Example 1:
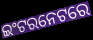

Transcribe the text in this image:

ଇଂଟରନେଟରେ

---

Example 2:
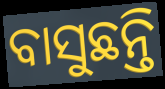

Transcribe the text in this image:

ବାସୁଛନ୍ତି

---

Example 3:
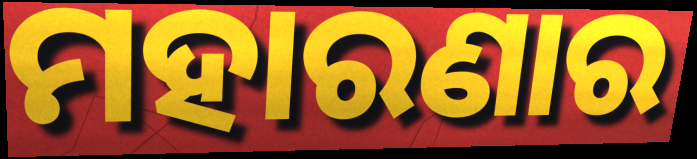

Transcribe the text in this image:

ମହାରଣାର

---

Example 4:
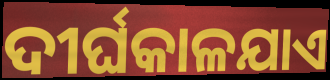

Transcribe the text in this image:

ଦୀର୍ଘକାଳଯାଏ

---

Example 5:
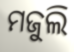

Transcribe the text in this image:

ମଜୁଲି